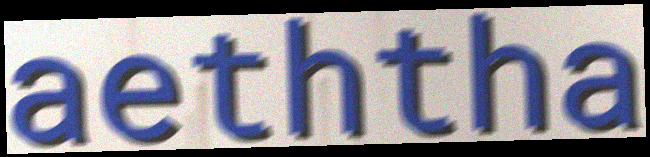
aeththa